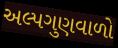
અલ્પગુણવાળો